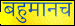
बहुमानच